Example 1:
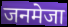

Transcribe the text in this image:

जनमेजा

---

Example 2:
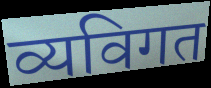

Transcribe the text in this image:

व्यविगत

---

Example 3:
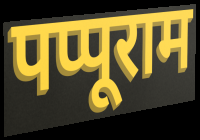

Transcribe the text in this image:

पप्पूराम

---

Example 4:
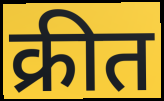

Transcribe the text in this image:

क्रीत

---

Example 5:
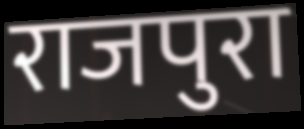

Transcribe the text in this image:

राजपुरा